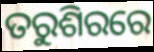
ତରୁଶିରରେ